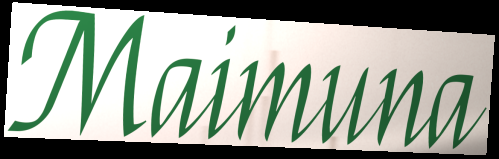
Maimuna